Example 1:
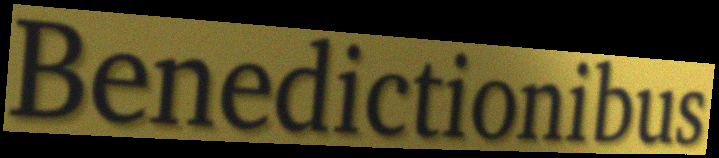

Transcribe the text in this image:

Benedictionibus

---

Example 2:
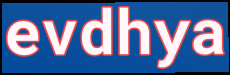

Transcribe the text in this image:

evdhya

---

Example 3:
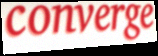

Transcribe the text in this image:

converge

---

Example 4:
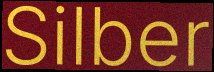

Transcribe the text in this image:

Silber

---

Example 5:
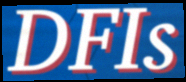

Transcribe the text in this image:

DFIs